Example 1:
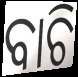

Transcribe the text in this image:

ବାଚି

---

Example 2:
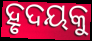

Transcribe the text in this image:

ହୃଦୟକୁ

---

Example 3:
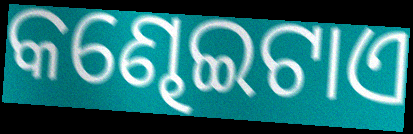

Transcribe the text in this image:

କଣ୍ଢେଇଟାଏ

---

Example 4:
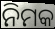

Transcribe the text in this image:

ନିମକ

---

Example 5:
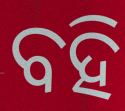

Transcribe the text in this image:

ବହି